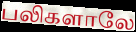
பலிகளாலே